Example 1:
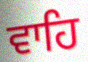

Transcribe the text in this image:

ਵਾਹਿ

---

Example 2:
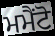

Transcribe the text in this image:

ਮਮੈਂਟੋ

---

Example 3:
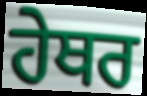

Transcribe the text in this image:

ਹੇਥਰ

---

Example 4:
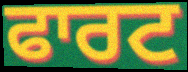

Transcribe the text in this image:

ਫਾਰਟ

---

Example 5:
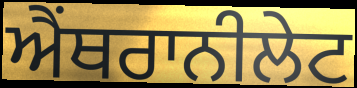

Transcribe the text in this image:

ਐਂਥਰਾਨੀਲੇਟ